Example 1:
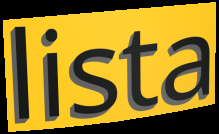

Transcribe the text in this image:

lista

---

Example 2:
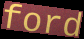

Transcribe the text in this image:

ford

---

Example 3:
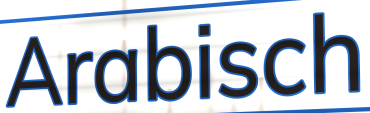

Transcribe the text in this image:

Arabisch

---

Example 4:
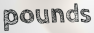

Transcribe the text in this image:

pounds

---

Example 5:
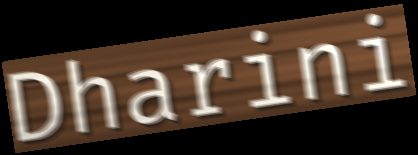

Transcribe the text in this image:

Dharini